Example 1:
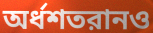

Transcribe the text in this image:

অর্ধশতরানও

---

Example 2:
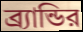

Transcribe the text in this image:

ব্র্যান্ডির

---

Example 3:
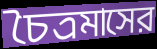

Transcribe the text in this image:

চৈত্রমাসের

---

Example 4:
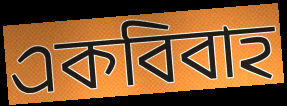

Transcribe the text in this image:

একবিবাহ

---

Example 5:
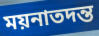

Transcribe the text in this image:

ময়নাতদন্ত